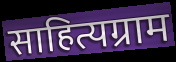
साहित्यग्राम